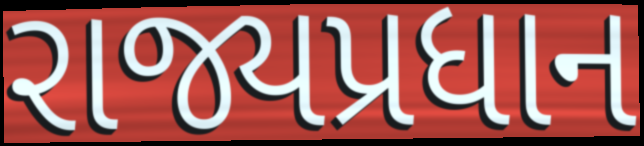
રાજ્યપ્રધાન